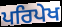
ਪਰਿਪੇਖ